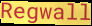
Regwall